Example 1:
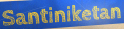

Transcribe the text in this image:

Santiniketan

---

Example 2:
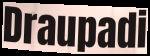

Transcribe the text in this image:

Draupadi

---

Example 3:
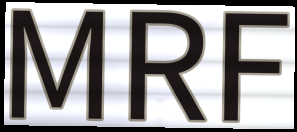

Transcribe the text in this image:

MRF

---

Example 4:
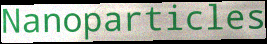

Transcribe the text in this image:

Nanoparticles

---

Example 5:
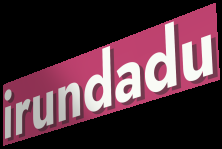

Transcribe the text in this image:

irundadu